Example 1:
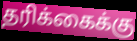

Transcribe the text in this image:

தரிக்கைக்கு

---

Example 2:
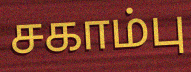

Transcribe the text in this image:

சகாம்பு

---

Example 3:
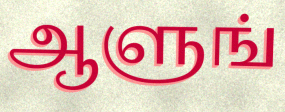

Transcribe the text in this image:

ஆளுங்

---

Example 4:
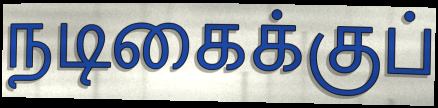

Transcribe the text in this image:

நடிகைக்குப்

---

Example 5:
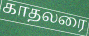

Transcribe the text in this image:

காதலரை